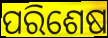
ପରିଶେଷ